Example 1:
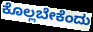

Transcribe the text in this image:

ಕೊಲ್ಲಬೇಕೆಂದು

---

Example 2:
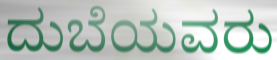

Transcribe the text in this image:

ದುಬೆಯವರು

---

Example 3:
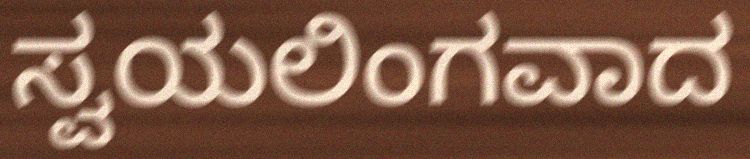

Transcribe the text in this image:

ಸ್ವಯಲಿಂಗವಾದ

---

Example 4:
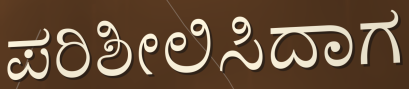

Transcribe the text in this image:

ಪರಿಶೀಲಿಸಿದಾಗ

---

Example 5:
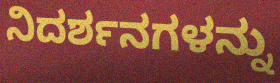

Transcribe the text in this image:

ನಿದರ್ಶನಗಳನ್ನು